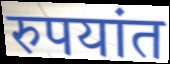
रुपयांत